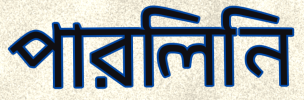
পারলিনি